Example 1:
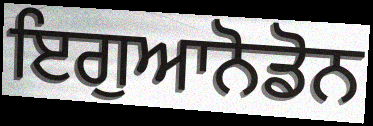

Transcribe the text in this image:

ਇਗੁਆਨੋਡੋਨ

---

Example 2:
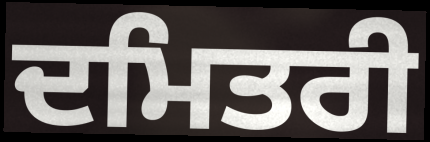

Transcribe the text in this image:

ਦਮਿਤਰੀ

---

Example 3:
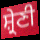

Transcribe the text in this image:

ਸ਼੍ਰੇਣੀ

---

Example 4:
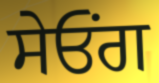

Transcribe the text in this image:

ਸੇਓਂਗ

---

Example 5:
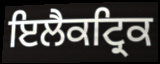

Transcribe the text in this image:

ਇਲੈਕਟ੍ਰਿਕ